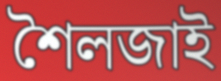
শৈলজাই